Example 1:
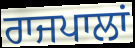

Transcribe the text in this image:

ਰਾਜਪਾਲਾਂ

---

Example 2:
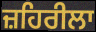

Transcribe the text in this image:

ਜ਼ਹਿਰੀਲਾ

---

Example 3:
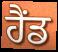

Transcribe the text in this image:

ਹੈਂਡ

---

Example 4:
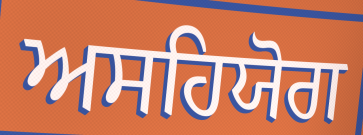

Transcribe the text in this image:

ਅਸਹਿਯੋਗ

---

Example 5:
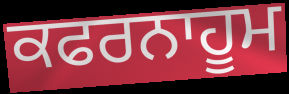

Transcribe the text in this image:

ਕਫਰਨਾਹੂਮ